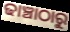
ଢାଞ୍ଚାଠାରୁ